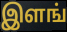
இளங்